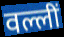
वल्लीं